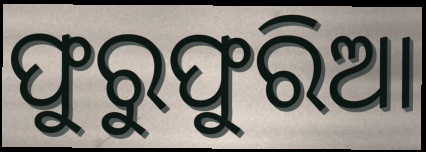
ଫୁରୁଫୁରିଆ